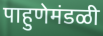
पाहुणेमंडळी